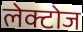
लेक्टोज